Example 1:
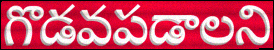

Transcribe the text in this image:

గొడవపడాలని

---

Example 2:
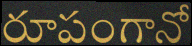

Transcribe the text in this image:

రూపంగానో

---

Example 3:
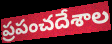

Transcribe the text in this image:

ప్రపంచదేశాల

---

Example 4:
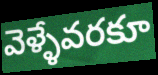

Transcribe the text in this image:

వెళ్ళేవరకూ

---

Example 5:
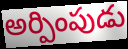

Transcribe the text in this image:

అర్పింపుడు